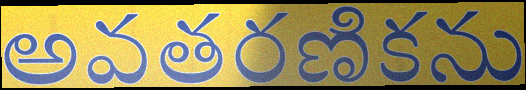
అవతరణికను